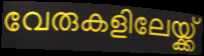
വേരുകളിലേയ്ക്ക്